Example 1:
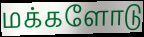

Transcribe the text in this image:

மக்களோடு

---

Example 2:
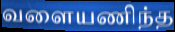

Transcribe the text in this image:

வளையணிந்த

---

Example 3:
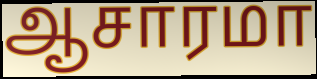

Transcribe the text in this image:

ஆசாரமா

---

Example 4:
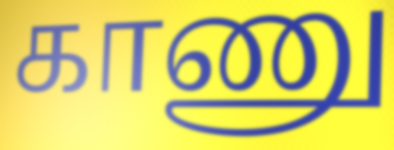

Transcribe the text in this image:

காணு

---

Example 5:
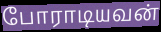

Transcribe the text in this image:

போராடியவன்